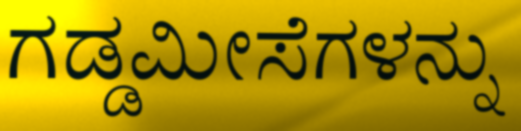
ಗಡ್ಡಮೀಸೆಗಳನ್ನು